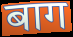
बाग